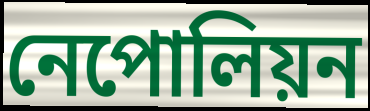
নেপোলিয়ন